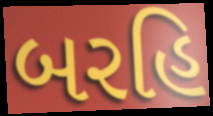
બરહિ